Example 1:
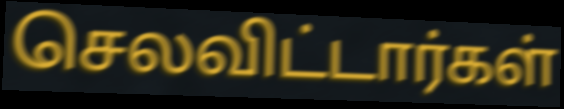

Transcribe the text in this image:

செலவிட்டார்கள்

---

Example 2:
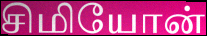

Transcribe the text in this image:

சிமியோன்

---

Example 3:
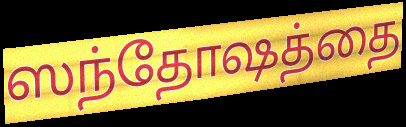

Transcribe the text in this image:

ஸந்தோஷத்தை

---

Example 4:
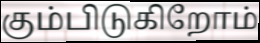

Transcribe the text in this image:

கும்பிடுகிறோம்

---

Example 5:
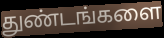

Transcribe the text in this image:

துண்டங்களை